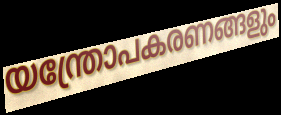
യന്ത്രോപകരണങ്ങളും